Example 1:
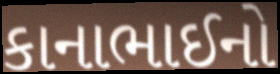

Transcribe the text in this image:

કાનાભાઈનો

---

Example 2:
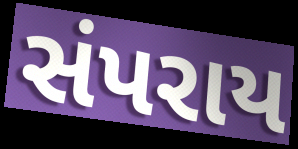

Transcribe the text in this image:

સંપરાય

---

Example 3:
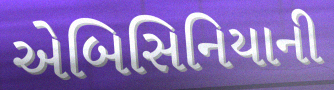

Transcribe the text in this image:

એબિસિનિયાની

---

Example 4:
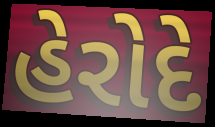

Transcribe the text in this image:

હેરોદે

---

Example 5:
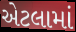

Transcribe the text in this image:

એટલામાં